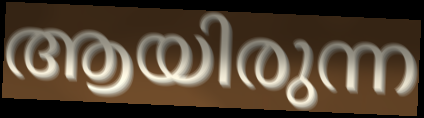
ആയിരുന്ന